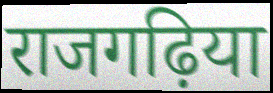
राजगढ़िया